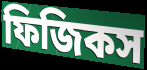
ফিজিকস